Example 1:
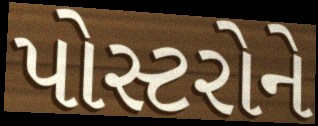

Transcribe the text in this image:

પોસ્ટરોને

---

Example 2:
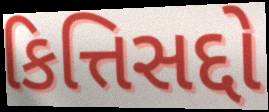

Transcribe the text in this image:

કિત્તિસદ્દો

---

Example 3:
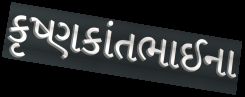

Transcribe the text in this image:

કૃષ્ણકાંતભાઈના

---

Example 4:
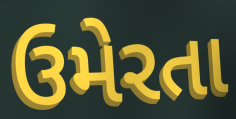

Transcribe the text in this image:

ઉમેરતા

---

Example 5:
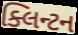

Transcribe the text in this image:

ક્લિન્ટન